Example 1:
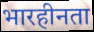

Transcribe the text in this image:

भारहीनता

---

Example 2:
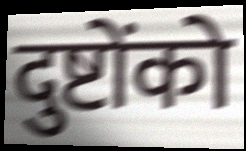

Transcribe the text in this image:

दुष्टोंको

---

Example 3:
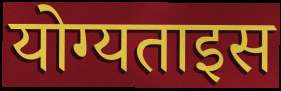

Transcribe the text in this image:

योग्यताइस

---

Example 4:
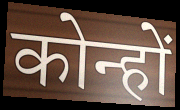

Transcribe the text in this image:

कोन्हों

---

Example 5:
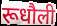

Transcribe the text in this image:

रूधौली